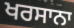
ਖਰਸਾਨਾ